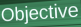
Objective